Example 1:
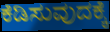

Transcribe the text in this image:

ಕೆಡಿಸುವುದಕ್ಕೆ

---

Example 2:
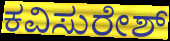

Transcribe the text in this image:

ಕವಿಸುರೇಶ್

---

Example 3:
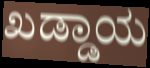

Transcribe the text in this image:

ಖಡ್ಡಾಯ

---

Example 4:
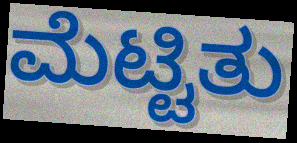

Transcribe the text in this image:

ಮೆಟ್ಟಿತು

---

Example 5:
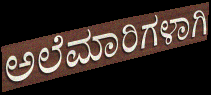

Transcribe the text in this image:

ಅಲೆಮಾರಿಗಳಾಗಿ